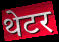
थेटर